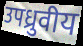
उपध्रुवीय